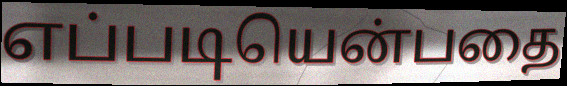
எப்படியென்பதை